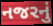
નજરનું